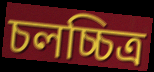
চলচ্চিত্ৰ